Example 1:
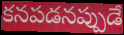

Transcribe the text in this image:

కనపడనప్పుడే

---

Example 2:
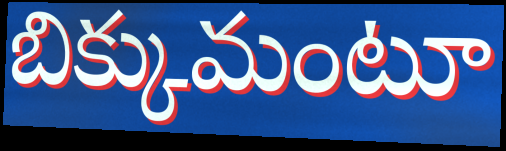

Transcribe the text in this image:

బిక్కుమంటూ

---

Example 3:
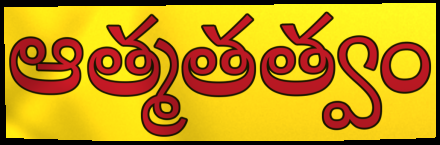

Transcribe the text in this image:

ఆత్మతత్వం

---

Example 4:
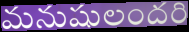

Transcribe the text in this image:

మనుషులందరి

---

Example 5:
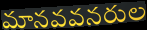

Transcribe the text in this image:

మానవవనరుల